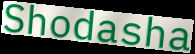
Shodasha